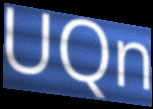
UQn